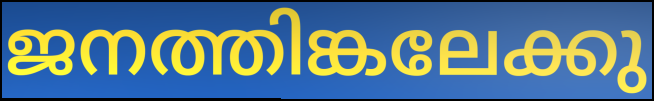
ജനത്തിങ്കലേക്കു